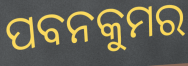
ପବନକୁମର